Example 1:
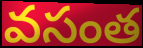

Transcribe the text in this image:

వసంత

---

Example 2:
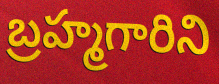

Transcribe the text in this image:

బ్రహ్మగారిని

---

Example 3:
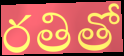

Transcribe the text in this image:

రతితో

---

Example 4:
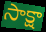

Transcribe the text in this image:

సాక్షా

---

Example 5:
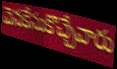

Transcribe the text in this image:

వెనకేసుకొచ్చేవారు